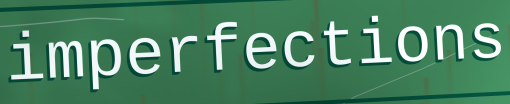
imperfections